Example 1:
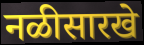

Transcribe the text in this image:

नळीसारखे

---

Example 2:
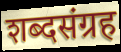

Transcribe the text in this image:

शब्दसंग्रह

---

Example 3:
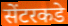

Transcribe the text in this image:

सेंटरकडे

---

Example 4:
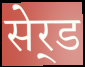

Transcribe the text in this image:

सेर्ड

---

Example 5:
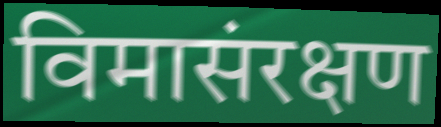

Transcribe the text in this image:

विमासंरक्षण